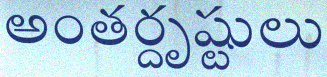
అంతర్దృష్టులు